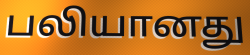
பலியானது